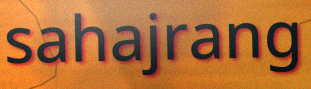
sahajrang